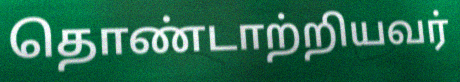
தொண்டாற்றியவர்